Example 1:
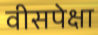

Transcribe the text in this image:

वीसपेक्षा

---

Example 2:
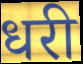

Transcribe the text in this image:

धरी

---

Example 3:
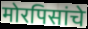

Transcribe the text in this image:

मोरपिसांचे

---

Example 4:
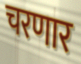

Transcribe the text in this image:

चरणार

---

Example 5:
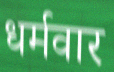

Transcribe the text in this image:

धर्मवार